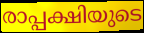
രാപ്പക്ഷിയുടെ